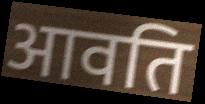
आवति